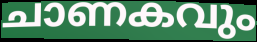
ചാണകവും